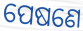
ପେଷଣେ